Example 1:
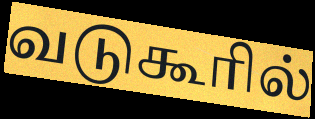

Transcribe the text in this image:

வடுகூரில்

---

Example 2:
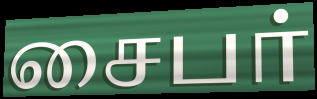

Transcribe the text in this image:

சைபர்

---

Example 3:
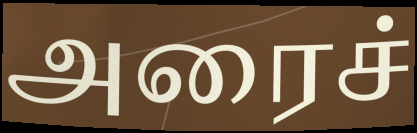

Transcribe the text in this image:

அரைச்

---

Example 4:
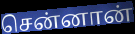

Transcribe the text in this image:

சென்னான்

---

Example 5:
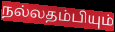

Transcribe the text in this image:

நல்லதம்பியும்